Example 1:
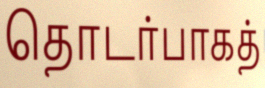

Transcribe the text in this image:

தொடர்பாகத்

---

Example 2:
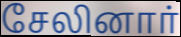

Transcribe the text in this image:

சேலினார்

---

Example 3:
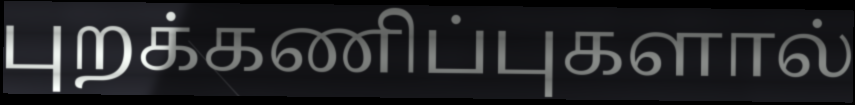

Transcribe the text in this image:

புறக்கணிப்புகளால்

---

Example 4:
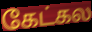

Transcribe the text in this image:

கேட்கல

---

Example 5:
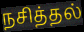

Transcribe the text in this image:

நசித்தல்